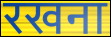
रखना